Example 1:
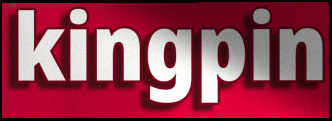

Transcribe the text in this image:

kingpin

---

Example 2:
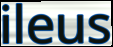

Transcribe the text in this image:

ileus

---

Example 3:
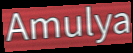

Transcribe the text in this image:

Amulya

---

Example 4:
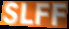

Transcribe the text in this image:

SLFF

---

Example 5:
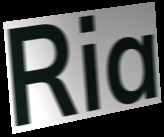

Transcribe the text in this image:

Ria